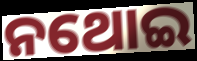
ନଥୋଇ